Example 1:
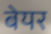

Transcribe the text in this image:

बेयर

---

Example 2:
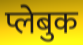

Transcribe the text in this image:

प्लेबुक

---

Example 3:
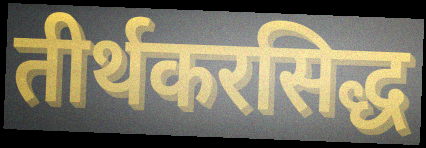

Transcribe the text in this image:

तीर्थकरसिद्ध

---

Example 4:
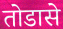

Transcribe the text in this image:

तोडासे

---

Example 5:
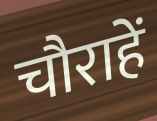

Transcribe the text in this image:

चौराहें